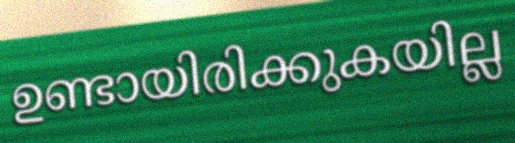
ഉണ്ടായിരിക്കുകയില്ല